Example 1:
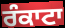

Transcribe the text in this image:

ਰੰਕਾਟਾ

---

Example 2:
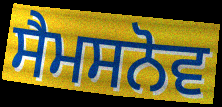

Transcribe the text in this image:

ਸੈਮਸਨੋਵ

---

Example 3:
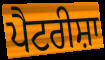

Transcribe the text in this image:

ਪੈਟਰੀਸ਼ਾ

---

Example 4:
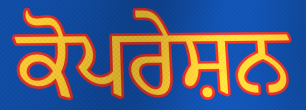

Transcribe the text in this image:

ਕੋਪਰੇਸ਼ਨ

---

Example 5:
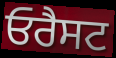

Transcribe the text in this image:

ਓਰੈਸਟ